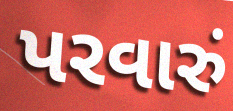
પરવારું